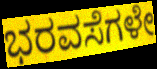
ಭರವಸೆಗಳೇ